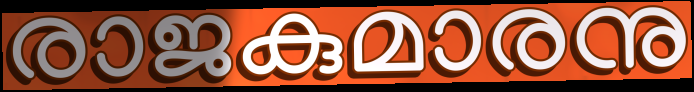
രാജകുമാരനു